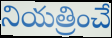
నియత్రించే